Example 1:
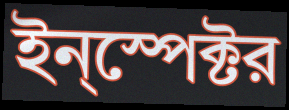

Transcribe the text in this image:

ইন্‌স্পেক্টর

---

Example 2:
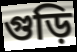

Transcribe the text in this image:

গুড়ি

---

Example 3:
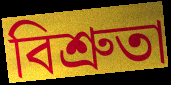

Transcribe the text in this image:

বিশ্রুতা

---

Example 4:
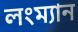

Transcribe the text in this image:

লংম্যান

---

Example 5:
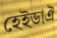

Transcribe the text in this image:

হেইডাঐ